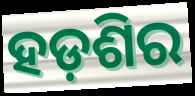
ହଡ଼ଶିର